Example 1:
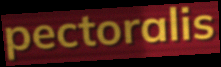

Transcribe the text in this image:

pectoralis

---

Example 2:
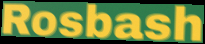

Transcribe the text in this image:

Rosbash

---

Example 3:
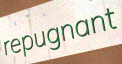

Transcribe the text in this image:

repugnant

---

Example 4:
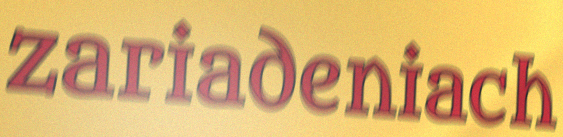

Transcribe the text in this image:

zariadeniach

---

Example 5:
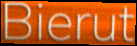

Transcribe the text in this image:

Bierut